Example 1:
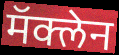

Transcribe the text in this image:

मॅक्लेन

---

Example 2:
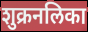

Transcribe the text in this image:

शुक्रनलिका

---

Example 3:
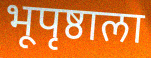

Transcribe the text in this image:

भूपृष्ठाला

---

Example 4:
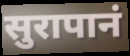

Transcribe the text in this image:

सुरापानं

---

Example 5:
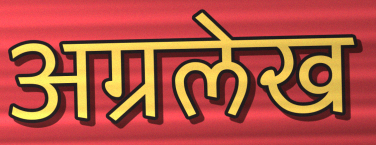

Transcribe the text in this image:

अग्रलेख